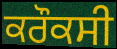
ਕਰੌਕਸੀ